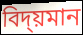
বিদ্য়মান